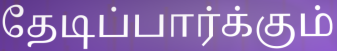
தேடிப்பார்க்கும்